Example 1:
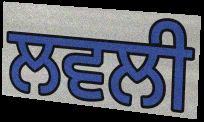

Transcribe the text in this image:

ਲਵਲੀ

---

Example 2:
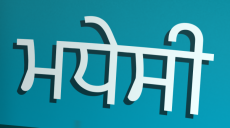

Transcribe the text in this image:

ਮਧੇਸੀ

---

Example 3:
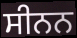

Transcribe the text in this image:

ਸੀਨਨ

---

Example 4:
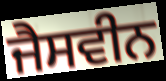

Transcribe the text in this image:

ਜੈਸਵੀਨ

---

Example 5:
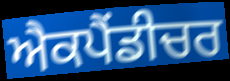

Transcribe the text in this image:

ਐਕਪੈਂਡੀਚਰ